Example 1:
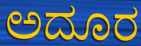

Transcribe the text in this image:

ಅದೂರ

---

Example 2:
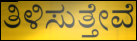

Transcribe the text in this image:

ತಿಳಿಸುತ್ತೇವೆ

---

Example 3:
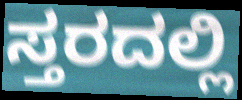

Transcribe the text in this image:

ಸ್ತರದಲ್ಲಿ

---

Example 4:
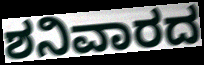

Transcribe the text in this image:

ಶನಿವಾರದ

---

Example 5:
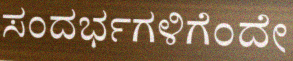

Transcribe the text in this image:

ಸಂದರ್ಭಗಳಿಗೆಂದೇ